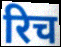
रिच